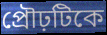
প্রৌঢ়টিকে